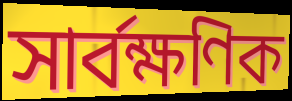
সার্বক্ষণিক